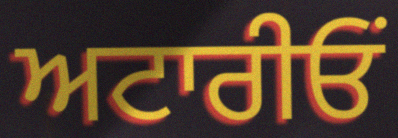
ਅਟਾਰੀਓਂ